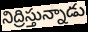
నిద్రిస్తున్నాడు